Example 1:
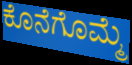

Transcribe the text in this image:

ಕೊನೆಗೊಮ್ಮೆ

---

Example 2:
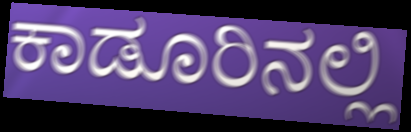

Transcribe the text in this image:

ಕಾಡೂರಿನಲ್ಲಿ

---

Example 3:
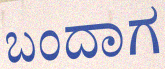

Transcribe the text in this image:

ಬಂದಾಗ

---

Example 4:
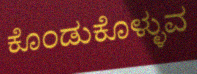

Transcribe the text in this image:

ಕೊಂಡುಕೊಳ್ಳುವ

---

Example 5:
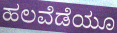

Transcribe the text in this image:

ಹಲವೆಡೆಯೂ